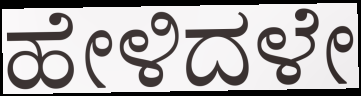
ಹೇಳಿದಳೇ